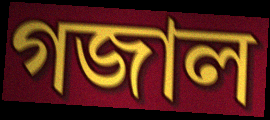
গজাল